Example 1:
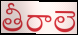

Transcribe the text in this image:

తీరాలె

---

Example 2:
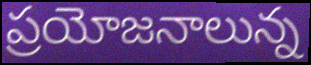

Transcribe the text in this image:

ప్రయోజనాలున్న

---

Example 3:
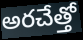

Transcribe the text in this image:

అరచేత్తో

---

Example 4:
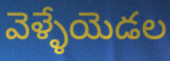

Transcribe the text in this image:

వెళ్ళేయెడల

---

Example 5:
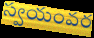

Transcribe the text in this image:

స్వయంవర